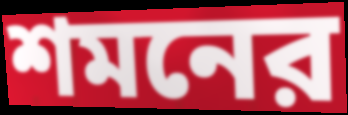
শমনের